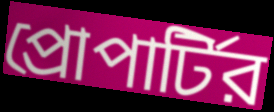
প্রোপার্টির